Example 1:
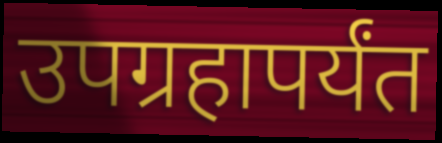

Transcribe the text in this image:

उपग्रहापर्यंत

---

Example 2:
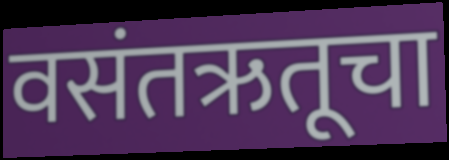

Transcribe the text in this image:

वसंतऋतूचा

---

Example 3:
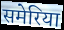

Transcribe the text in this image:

समेरिया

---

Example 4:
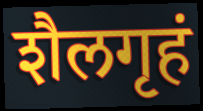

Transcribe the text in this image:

शैलगृहं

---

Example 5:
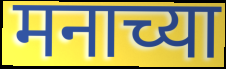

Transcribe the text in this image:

मनाच्‍या